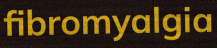
fibromyalgia